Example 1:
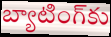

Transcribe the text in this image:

బ్యాటింగ్‌కు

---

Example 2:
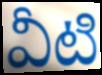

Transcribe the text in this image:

వీటి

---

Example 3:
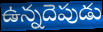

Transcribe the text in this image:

ఉన్నదెపుడు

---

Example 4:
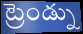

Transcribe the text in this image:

ట్రెండ్ను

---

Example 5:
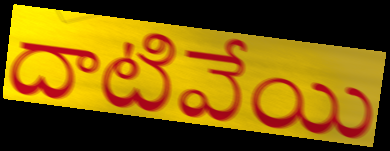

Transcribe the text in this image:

దాటివేయి